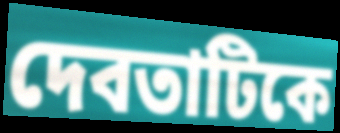
দেবতাটিকে